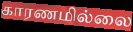
காரணமில்லை